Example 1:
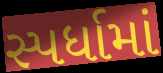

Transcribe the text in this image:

સ્પર્ધામાં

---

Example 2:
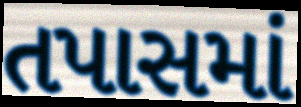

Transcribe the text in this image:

તપાસમાં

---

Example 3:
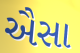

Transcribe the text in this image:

ઐસા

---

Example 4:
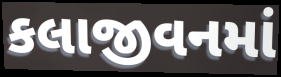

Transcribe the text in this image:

કલાજીવનમાં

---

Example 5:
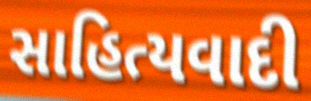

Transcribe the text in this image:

સાહિત્યવાદી